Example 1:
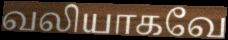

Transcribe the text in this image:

வலியாகவே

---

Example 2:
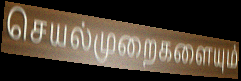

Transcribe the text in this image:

செயல்முறைகளையும்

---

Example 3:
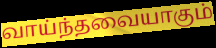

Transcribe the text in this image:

வாய்ந்தவையாகும்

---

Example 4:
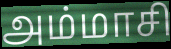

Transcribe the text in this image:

அம்மாசி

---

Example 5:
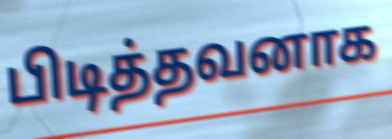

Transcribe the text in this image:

பிடித்தவனாக